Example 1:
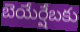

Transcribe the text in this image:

బెయేర్షేబకు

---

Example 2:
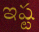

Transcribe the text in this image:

ఇష్ట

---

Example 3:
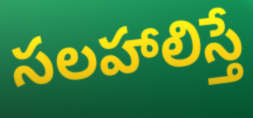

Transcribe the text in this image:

సలహాలిస్తే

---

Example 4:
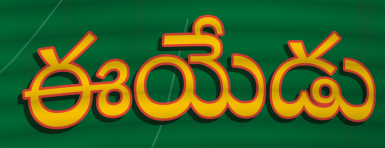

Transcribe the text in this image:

ఈయేడు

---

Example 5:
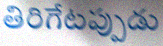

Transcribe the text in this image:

తిరిగేటప్పుడు